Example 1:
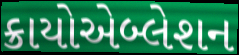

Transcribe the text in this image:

ક્રાયોએબ્લેશન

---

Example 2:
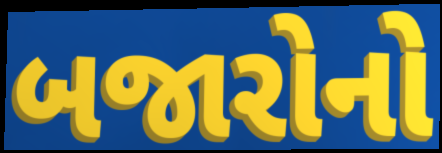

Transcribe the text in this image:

બજારોનો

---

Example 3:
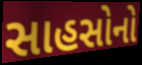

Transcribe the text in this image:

સાહસોનો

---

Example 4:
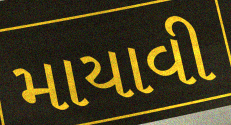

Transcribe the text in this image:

માયાવી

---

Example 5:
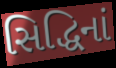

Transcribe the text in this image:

સિદ્ધિનાં